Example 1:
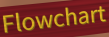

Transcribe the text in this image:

Flowchart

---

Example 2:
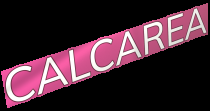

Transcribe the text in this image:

CALCAREA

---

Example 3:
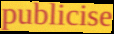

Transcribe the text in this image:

publicise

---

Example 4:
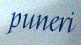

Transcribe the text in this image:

puneri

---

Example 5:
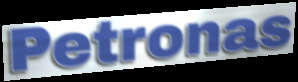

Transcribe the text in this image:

Petronas